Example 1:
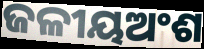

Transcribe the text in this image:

ଜଳୀୟଅଂଶ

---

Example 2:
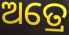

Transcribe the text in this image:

ଅତ୍ରେ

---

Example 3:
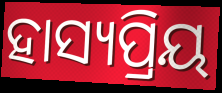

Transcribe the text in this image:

ହାସ୍ୟପ୍ରିୟ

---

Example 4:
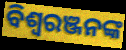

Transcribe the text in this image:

ବିଶ୍ବରଞ୍ଜନଙ୍କ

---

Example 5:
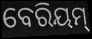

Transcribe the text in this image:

ବେରିୟମ୍